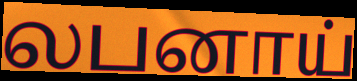
லபனாய்